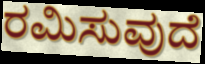
ರಮಿಸುವುದೆ